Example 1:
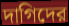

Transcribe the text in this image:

দাগিদের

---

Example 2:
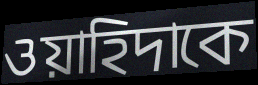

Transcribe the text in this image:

ওয়াহিদাকে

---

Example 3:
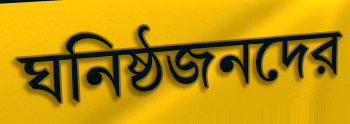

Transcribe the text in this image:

ঘনিষ্ঠজনদের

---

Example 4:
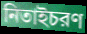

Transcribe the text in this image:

নিতাইচরণ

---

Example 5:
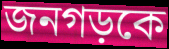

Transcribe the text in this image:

জনগড়কে